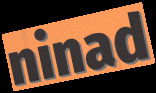
ninad